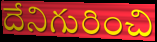
దేనిగురించి